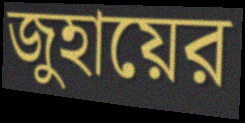
জুহায়ের